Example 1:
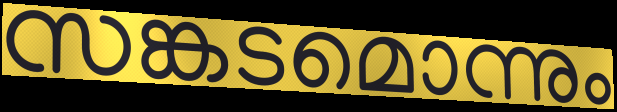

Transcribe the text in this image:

സങ്കടമൊന്നും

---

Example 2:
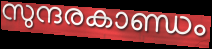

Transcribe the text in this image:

സുന്ദരകാണ്ഡം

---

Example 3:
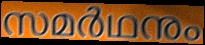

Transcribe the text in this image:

സമർഥനും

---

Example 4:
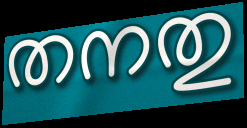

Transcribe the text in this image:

തനതു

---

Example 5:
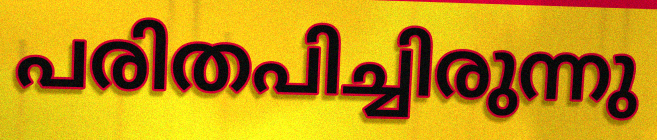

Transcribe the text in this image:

പരിതപിച്ചിരുന്നു